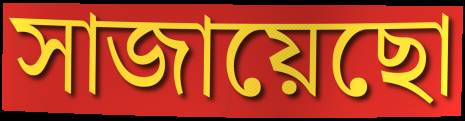
সাজায়েছো